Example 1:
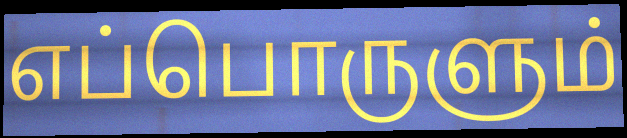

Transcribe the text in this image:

எப்பொருளும்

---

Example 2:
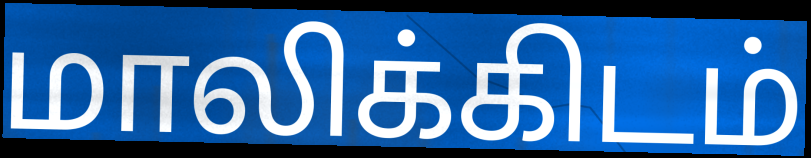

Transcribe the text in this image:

மாலிக்கிடம்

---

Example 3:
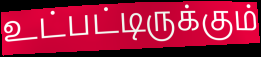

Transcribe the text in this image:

உட்பட்டிருக்கும்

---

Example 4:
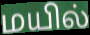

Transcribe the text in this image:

மயில்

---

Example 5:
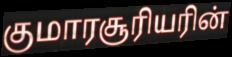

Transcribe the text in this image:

குமாரசூரியரின்